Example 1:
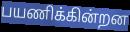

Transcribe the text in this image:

பயணிக்கின்றன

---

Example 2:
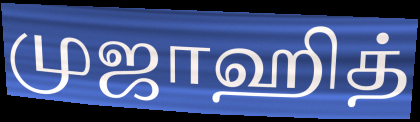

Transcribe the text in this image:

முஜாஹித்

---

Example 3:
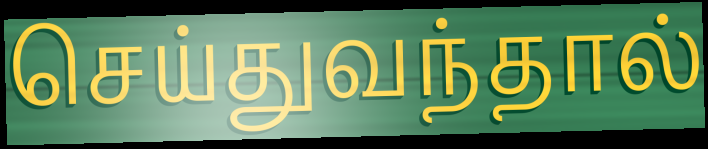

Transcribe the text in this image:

செய்துவந்தால்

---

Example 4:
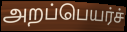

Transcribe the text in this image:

அறப்பெயர்ச்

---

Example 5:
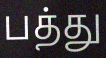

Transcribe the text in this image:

பத்து